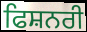
ਫਿਸ਼ਨਰੀ